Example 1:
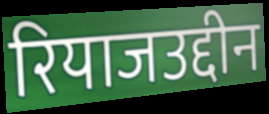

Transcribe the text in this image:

रियाजउद्दीन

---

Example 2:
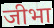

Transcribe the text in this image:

जीभा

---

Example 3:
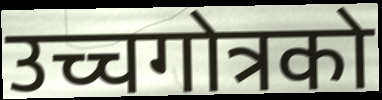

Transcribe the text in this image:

उच्चगोत्रको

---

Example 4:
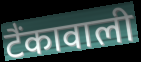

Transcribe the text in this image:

टैंकावाली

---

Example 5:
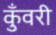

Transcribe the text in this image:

कुँवरी